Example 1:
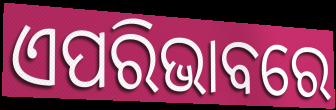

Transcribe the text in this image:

ଏପରିଭାବରେ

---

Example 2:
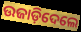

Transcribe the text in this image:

ଉଜାଡ଼ିଦେଲେ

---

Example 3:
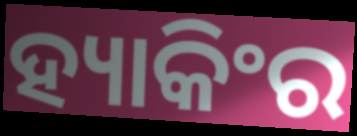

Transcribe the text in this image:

ହ୍ୟାକିଂର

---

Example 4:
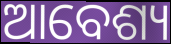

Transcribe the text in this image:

ଆବେଶ୍ୟ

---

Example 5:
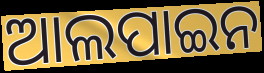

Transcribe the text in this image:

ଆଲପାଇନ